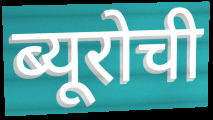
ब्यूरोची